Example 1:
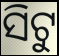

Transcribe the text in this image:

ସିଟୁ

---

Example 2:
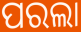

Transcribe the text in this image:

ପରଲା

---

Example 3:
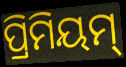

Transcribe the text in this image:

ପ୍ରିମିୟମ୍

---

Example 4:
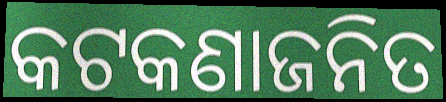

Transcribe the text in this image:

କଟକଣାଜନିତ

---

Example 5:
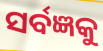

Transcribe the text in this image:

ସର୍ବଜ୍ଞକୁ